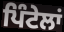
ਪਿੰਟੇਲਾਂ